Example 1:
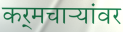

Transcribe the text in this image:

कर्मचाऱ्यांवर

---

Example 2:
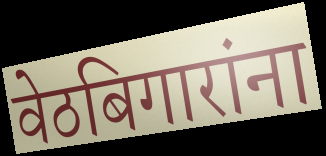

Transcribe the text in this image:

वेठबिगारांना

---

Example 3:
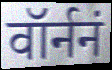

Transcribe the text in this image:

वॉर्ननं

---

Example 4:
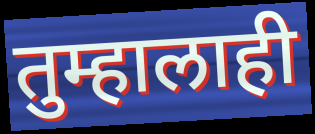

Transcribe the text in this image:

तुम्हालाही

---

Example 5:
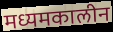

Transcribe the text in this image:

मध्यमकालीन